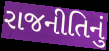
રાજનીતિનું